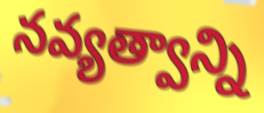
నవ్యత్వాన్ని